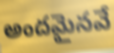
అందమైనవే